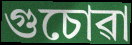
গুচোৱা